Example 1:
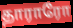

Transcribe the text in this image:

தாராரோ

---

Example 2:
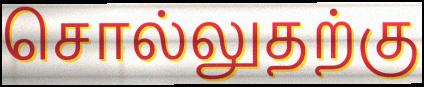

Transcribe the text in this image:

சொல்லுதற்கு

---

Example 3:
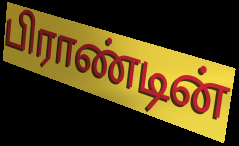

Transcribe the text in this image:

பிராண்டின்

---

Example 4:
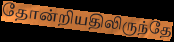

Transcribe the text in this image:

தோன்றியதிலிருந்தே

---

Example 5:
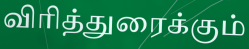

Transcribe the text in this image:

விரித்துரைக்கும்